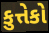
કુત્તેકો